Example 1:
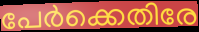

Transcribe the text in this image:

പേർക്കെതിരേ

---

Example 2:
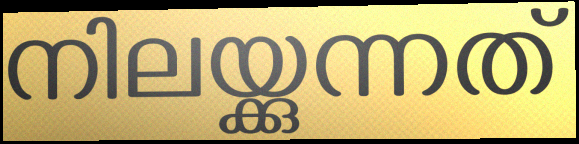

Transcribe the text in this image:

നിലയ്ക്കുന്നത്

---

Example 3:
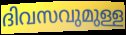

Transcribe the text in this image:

ദിവസവുമുള്ള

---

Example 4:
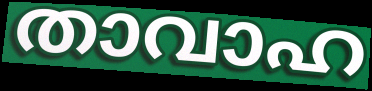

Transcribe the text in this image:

താവാഹ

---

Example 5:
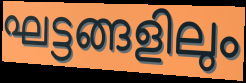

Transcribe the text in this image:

ഘട്ടങ്ങളിലും